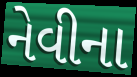
નેવીના